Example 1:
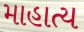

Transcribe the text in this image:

માહાત્ય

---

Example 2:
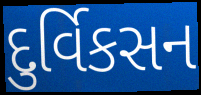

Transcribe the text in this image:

દુર્વિકસન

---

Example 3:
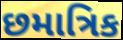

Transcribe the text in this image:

છમાત્રિક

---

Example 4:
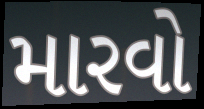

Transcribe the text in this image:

મારવો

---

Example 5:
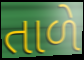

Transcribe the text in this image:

તાળે